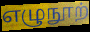
எழுநூற்